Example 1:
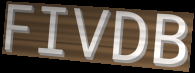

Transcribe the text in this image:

FIVDB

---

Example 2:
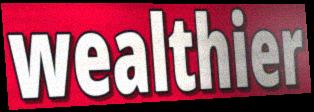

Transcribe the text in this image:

wealthier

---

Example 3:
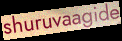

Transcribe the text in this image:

shuruvaagide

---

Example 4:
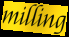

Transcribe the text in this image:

milling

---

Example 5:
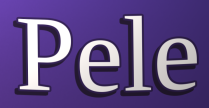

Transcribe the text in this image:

Pele